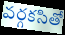
వర్గకసితో